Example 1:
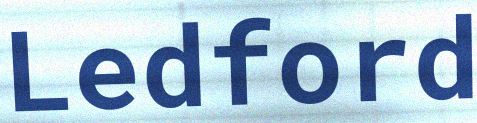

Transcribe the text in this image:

Ledford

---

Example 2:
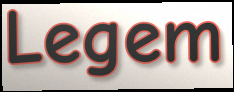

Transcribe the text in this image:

Legem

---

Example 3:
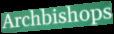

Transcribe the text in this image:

Archbishops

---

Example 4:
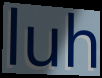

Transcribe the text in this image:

luh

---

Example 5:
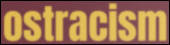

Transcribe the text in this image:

ostracism